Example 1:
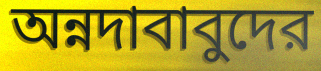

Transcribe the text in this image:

অন্নদাবাবুদের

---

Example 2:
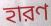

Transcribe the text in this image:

হারণ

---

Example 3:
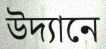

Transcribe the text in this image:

উদ্যানে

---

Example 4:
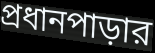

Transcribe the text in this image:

প্রধানপাড়ার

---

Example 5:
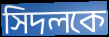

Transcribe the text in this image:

সিদলকে